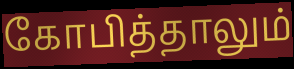
கோபித்தாலும்